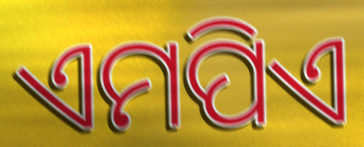
ଏମପିଏ